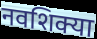
नवशिक्या